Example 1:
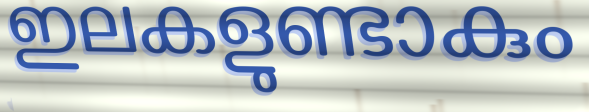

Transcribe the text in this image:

ഇലകളുണ്ടാകും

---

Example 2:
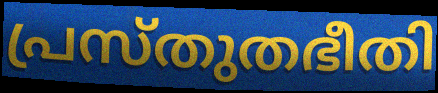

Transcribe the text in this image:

പ്രസ്തുതഭീതി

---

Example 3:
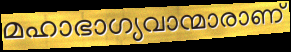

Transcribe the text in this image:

മഹാഭാഗ്യവാന്മാരാണ്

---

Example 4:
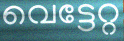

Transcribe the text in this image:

വെട്ടേറ്റ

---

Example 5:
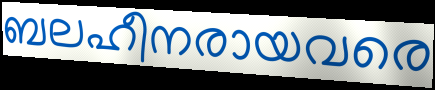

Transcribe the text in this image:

ബലഹീനരായവരെ